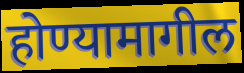
होण्यामागील